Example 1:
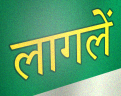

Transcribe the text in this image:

लागलें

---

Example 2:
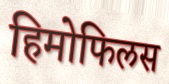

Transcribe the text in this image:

हिमोफिलस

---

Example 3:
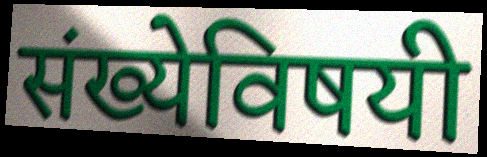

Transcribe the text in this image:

संख्येविषयी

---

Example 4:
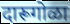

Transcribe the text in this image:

दारूगोळा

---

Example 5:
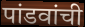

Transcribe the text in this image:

पांडवांची